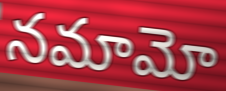
నమామో